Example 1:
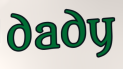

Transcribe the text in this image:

dady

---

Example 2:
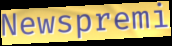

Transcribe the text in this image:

Newspremi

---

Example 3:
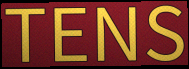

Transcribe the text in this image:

TENS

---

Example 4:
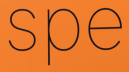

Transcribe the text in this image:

spe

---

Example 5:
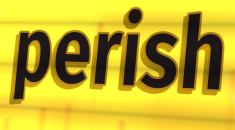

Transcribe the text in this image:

perish